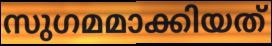
സുഗമമാക്കിയത്